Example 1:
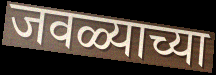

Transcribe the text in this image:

जवळ्याच्या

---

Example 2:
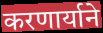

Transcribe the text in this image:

करणार्याने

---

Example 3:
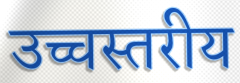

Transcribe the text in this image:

उच्चस्तरीय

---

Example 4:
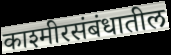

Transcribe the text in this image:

काश्मीरसंबंधातील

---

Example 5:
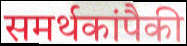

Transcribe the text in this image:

समर्थकांपैकी